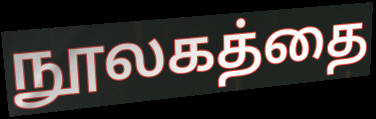
நூலகத்தை